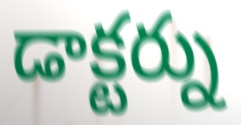
డాక్టర్ను